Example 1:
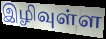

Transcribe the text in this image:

இழிவுள்ள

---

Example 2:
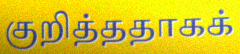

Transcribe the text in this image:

குறித்ததாகக்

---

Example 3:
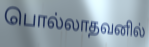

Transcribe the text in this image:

பொல்லாதவனில்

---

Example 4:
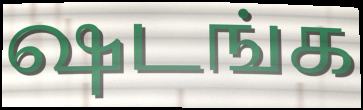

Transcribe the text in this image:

ஷடங்க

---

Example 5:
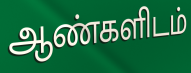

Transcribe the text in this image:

ஆண்களிடம்